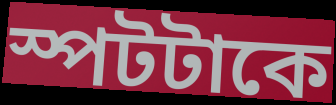
স্পটটাকে